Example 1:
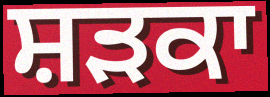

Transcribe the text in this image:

ਸ਼ੜਕਾ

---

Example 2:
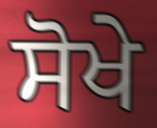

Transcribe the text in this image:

ਸੋਖੇ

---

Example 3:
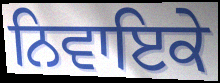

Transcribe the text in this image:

ਨਿਵਾਇਕੇ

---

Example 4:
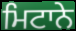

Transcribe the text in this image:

ਮਿਟਾਨੇ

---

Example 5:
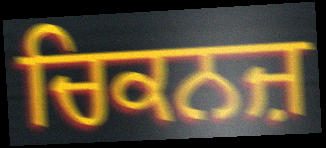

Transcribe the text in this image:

ਚਿਕਨਜ਼